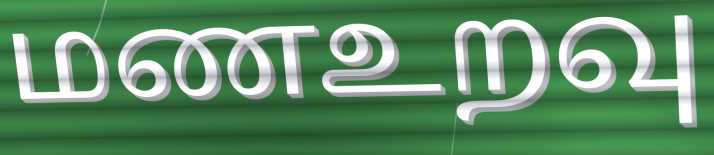
மணஉறவு